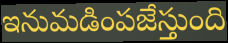
ఇనుమడింపజేస్తుంది